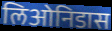
लिओनिडास